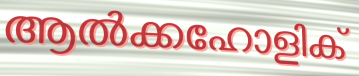
ആൽക്കഹോളിക്